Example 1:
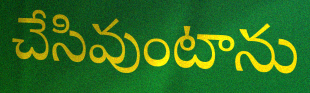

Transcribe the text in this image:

చేసివుంటాను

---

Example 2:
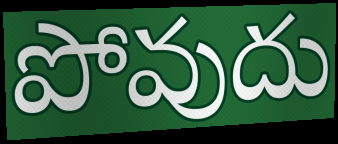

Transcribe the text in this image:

పోవుదు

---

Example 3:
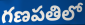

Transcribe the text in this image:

గణపతిలో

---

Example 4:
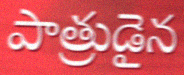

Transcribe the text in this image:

పాత్రుడైన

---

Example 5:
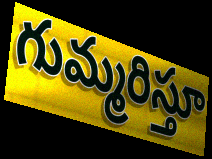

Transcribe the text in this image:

గుమ్మరిస్తూ